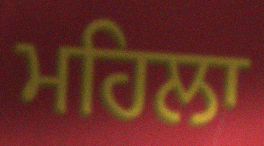
ਮਹਿਲਾ